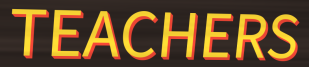
TEACHERS